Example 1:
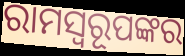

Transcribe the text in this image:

ରାମସ୍ୱରୂପଙ୍କର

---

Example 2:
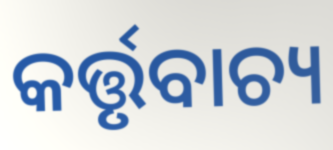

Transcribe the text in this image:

କର୍ତ୍ତୃବାଚ୍ୟ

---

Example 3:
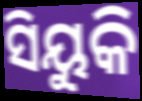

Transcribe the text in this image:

ସିୟୁକି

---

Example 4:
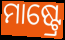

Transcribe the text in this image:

ମାଷ୍ଟ୍ରେ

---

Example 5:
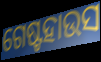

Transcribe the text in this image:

ଗେଷ୍ଟହାଉସ